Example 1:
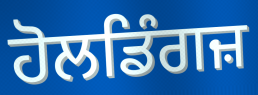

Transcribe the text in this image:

ਹੋਲਡਿੰਗਜ਼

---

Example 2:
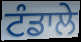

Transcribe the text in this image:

ਟੰਡਾਲੇ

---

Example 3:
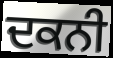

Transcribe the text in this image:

ਦਕਨੀ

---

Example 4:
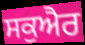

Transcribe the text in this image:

ਸਕੁਐਰ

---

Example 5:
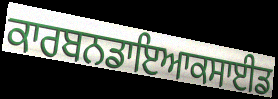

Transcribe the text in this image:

ਕਾਰਬਨਡਾਇਆਕਸਾਈਡ